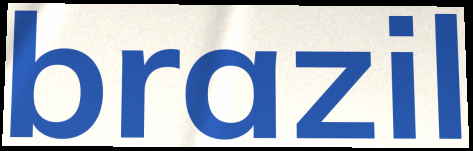
brazil